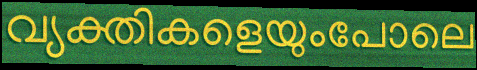
വ്യക്തികളെയുംപോലെ